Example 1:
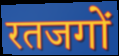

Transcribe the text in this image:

रतजगों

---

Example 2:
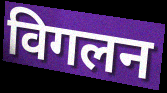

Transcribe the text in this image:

विगलन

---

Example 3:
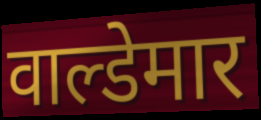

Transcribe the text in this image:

वाल्डेमार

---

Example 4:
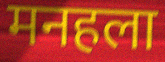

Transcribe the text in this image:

मनहला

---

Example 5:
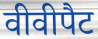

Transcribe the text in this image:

वीवीपैट